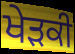
ਖੇੜਕੀ